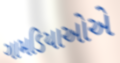
ગામડિયાઓએ